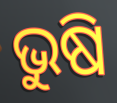
ଭୁଷି